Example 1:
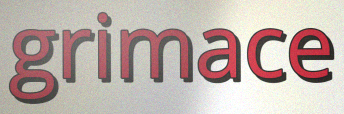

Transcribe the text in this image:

grimace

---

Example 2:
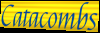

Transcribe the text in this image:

Catacombs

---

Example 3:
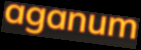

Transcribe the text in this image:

aganum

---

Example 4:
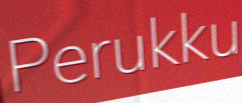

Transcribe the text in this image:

Perukku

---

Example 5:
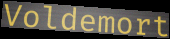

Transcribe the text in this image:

Voldemort